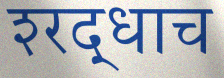
श्रद्धाच